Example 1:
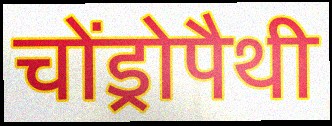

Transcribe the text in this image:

चोंड्रोपैथी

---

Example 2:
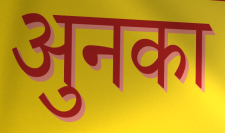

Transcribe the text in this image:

अुनका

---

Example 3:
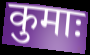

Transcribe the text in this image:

कुमाः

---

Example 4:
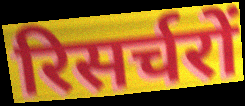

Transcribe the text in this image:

रिसर्चरों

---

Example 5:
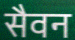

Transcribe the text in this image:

सैवन